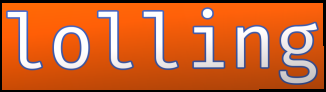
lolling